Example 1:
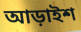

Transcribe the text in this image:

আড়াইশ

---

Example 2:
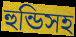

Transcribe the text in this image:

হুন্ডিসহ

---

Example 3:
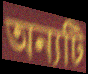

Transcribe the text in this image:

অন্যটি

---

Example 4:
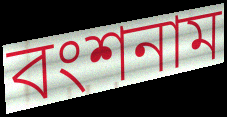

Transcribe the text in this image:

বংশনাম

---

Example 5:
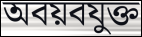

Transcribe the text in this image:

অবয়বযুক্ত